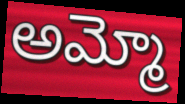
అమ్మో